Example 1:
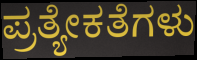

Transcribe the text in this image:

ಪ್ರತ್ಯೇಕತೆಗಳು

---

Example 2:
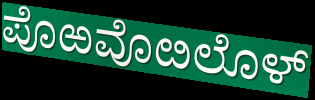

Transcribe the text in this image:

ಪೊಱವೊೞಲೊಳ್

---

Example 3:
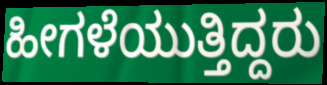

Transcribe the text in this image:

ಹೀಗಳೆಯುತ್ತಿದ್ದರು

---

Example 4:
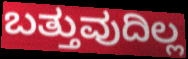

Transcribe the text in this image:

ಬತ್ತುವುದಿಲ್ಲ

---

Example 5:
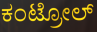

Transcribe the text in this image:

ಕಂಟ್ರೋಲ್